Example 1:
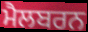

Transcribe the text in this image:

ਮੈਲਬਰਨ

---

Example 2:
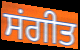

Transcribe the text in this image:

ਸਂਗੀਤ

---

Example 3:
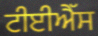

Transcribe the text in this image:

ਟੀਈਐੱਸ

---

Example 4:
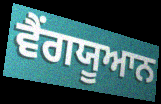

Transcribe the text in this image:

ਵੈਂਗਯੂਆਨ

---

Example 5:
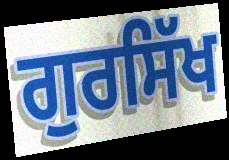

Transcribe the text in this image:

ਗੁਰਸਿੱਖ